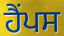
ਹੈਂਪਸ